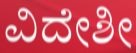
ವಿದೇಶೀ